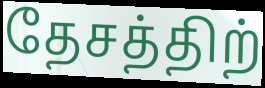
தேசத்திற்